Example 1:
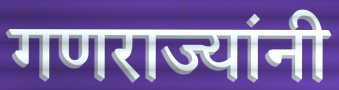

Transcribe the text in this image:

गणराज्यांनी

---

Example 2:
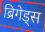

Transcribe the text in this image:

ब्रिगेड्स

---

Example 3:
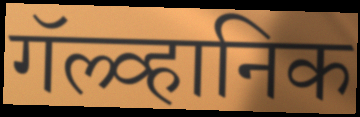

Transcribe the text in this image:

गॅल्व्हानिक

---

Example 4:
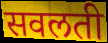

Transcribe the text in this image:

सवलती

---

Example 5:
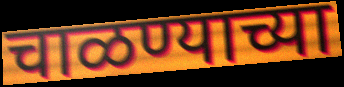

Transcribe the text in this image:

चाळण्याच्या